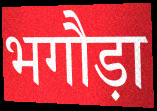
भगौड़ा